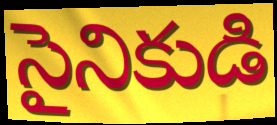
సైనికుడి